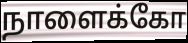
நாளைக்கோ